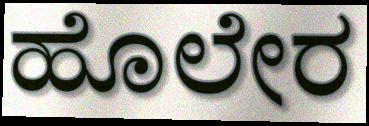
ಹೊಲೇರ